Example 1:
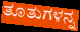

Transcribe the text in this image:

ತೂತುಗಳನ್ನ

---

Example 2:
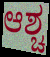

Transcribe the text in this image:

ಆಶ್ಚ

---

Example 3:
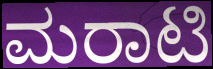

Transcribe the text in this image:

ಮರಾಟಿ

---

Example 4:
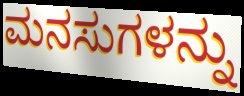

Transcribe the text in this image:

ಮನಸುಗಳನ್ನು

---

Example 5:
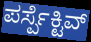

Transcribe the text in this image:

ಪರ್ಸ್ಪೆಕ್ಟಿವ್